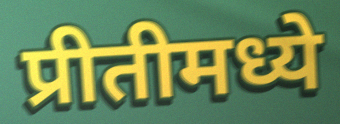
प्रीतीमध्ये